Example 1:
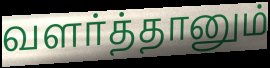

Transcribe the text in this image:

வளர்த்தானும்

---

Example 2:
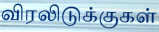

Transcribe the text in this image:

விரலிடுக்குகள்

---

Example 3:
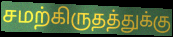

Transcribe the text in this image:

சமற்கிருதத்துக்கு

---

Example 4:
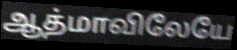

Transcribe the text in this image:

ஆத்மாவிலேயே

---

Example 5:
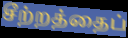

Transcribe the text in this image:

சீற்றத்தைப்